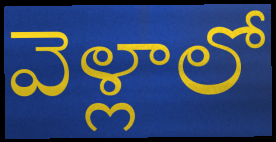
వెళ్లాలో